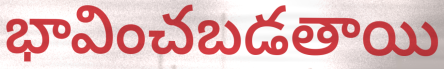
భావించబడతాయి